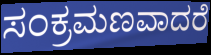
ಸಂಕ್ರಮಣವಾದರೆ